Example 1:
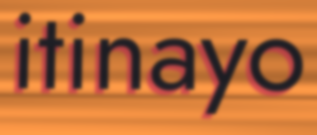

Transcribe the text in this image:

itinayo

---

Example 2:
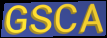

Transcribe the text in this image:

GSCA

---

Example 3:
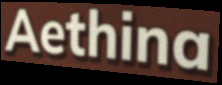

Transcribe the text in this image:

Aethina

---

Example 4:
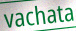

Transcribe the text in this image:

vachata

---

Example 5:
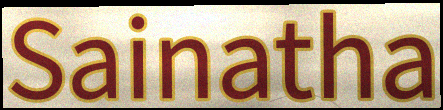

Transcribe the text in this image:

Sainatha